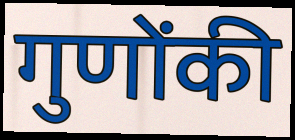
गुणोंकी